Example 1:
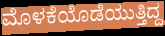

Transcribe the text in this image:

ಮೊಳಕೆಯೊಡೆಯುತ್ತಿದ್ದ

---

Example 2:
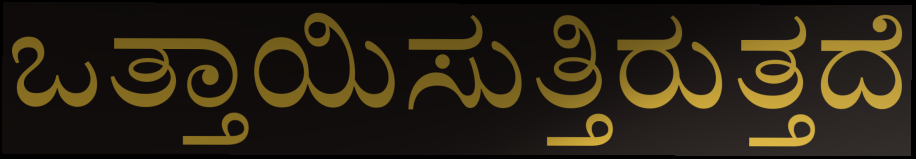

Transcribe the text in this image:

ಒತ್ತಾಯಿಸುತ್ತಿರುತ್ತದೆ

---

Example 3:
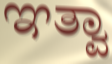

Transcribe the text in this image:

ಞತ್ವಾ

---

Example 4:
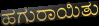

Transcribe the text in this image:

ಹಗುರಾಯಿತು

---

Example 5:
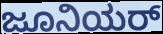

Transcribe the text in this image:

ಜೂನಿಯರ್